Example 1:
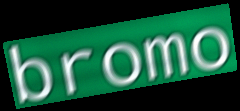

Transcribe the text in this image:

bromo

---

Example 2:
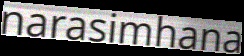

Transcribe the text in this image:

narasimhana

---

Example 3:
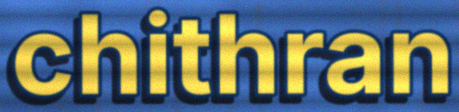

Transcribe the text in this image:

chithran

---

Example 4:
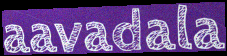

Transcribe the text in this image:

aavadala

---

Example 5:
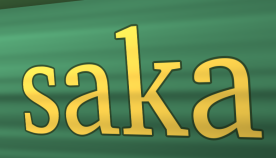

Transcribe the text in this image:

saka